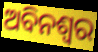
ଅବିନଶ୍ଵର